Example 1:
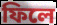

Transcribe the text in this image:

ফিলে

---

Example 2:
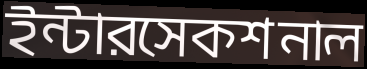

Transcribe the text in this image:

ইন্টারসেকশনাল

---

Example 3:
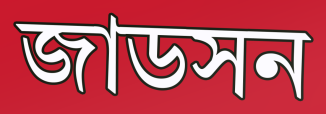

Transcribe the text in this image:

জাডসন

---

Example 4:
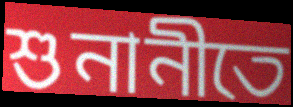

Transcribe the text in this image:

শুনানীতে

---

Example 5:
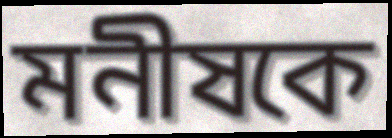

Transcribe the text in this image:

মনীষকে